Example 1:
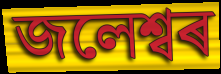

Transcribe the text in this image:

জলেশ্বৰ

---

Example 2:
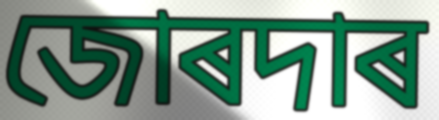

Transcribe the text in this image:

জোৰদাৰ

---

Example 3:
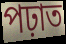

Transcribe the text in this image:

পঢ়াত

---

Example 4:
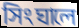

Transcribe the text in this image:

সিংঘালে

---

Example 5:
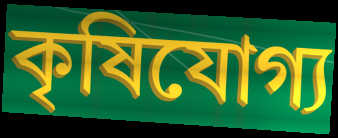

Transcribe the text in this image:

কৃষিযোগ্য